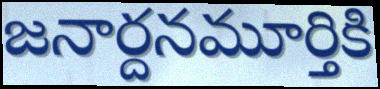
జనార్దనమూర్తికి